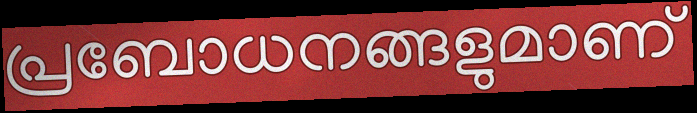
പ്രബോധനങ്ങളുമാണ്